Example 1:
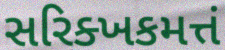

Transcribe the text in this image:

સરિક્ખકમત્તં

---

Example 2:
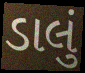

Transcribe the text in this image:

ડાલું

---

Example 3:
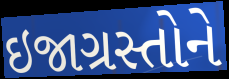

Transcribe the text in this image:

ઇજાગ્રસ્તોને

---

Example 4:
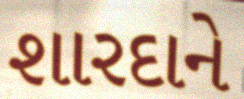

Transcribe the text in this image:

શારદાને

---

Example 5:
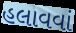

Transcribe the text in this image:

હલાવવાં